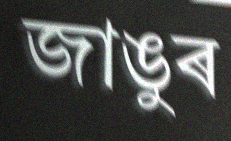
জাঙুৰ